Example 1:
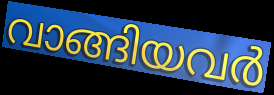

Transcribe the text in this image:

വാങ്ങിയവർ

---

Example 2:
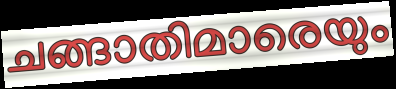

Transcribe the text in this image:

ചങ്ങാതിമാരെയും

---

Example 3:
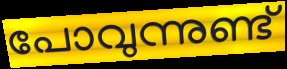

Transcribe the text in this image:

പോവുന്നുണ്ട്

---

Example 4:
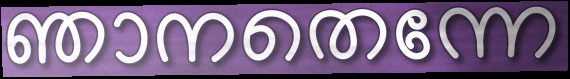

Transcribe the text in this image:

ഞാനതെന്നേ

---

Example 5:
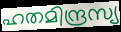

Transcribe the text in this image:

ഹതമിന്ദ്രസ്യ